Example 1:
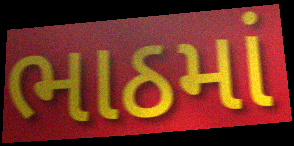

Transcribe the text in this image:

ભાઠમાં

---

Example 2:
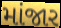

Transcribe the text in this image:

માંજાર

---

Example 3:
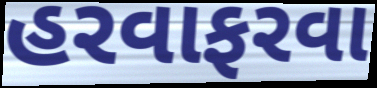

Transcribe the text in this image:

હરવાફરવા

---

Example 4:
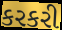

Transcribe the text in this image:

કરકરી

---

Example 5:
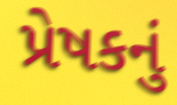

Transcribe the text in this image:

પ્રેષકનું